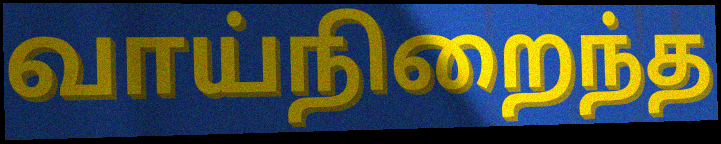
வாய்நிறைந்த